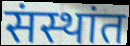
संस्थांत